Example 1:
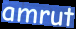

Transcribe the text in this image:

amrut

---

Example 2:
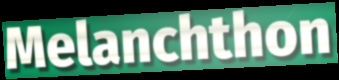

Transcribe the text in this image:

Melanchthon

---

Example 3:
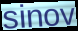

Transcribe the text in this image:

sinov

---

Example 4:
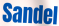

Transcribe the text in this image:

Sandel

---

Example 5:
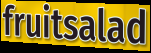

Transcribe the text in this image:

fruitsalad